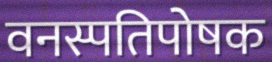
वनस्पतिपोषक